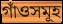
গাঁওসমূহ